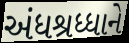
અંધશ્રધ્ધાને